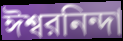
ঈশ্বরনিন্দা